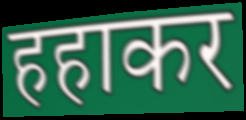
हहाकर